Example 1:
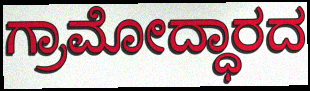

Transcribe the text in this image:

ಗ್ರಾಮೋದ್ಧಾರದ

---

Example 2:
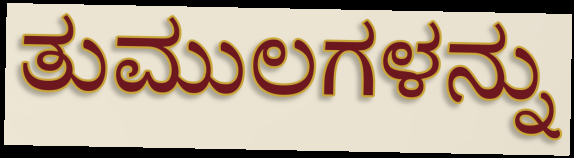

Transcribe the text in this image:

ತುಮುಲಗಳನ್ನು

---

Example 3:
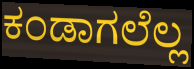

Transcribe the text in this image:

ಕಂಡಾಗಲೆಲ್ಲ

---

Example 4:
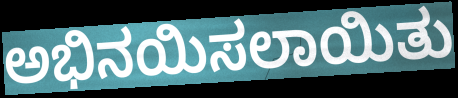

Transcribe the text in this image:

ಅಭಿನಯಿಸಲಾಯಿತು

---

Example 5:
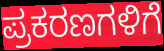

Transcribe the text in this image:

ಪ್ರಕರಣಗಳಿಗೆ